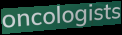
oncologists